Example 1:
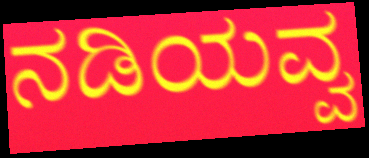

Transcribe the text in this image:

ನಡಿಯವ್ವ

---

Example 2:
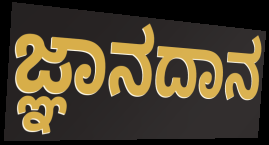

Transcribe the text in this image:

ಜ್ಞಾನದಾನ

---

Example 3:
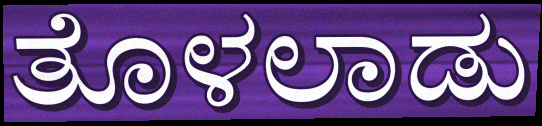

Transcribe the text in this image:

ತೊಳಲಾಡು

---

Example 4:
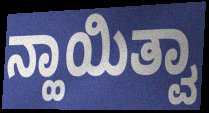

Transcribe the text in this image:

ನ್ಹಾಯಿತ್ವಾ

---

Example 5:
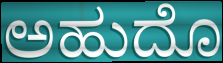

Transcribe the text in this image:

ಅಹುದೊ